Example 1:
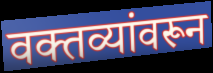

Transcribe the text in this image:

वक्तव्यांवरून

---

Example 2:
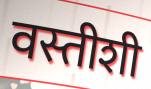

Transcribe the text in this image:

वस्‍तीशी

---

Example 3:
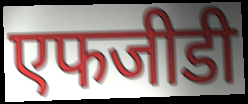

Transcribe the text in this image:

एफजीडी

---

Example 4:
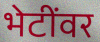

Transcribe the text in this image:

भेटींवर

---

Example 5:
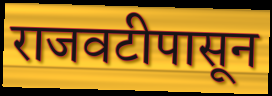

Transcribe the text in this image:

राजवटीपासून